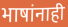
भाषांनाही